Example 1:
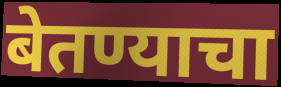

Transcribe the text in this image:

बेतण्याचा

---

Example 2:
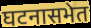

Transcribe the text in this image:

घटनासभेत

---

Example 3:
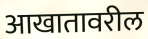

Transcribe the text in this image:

आखातावरील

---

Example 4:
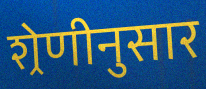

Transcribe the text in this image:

श्रेणीनुसार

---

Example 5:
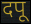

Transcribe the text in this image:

दपू